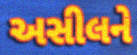
અસીલને